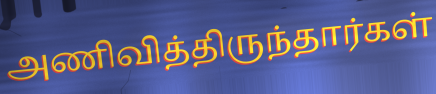
அணிவித்திருந்தார்கள்